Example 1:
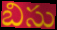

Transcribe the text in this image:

బిసు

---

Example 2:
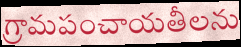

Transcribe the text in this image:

గ్రామపంచాయతీలను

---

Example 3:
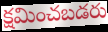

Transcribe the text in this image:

క్షమించబడరు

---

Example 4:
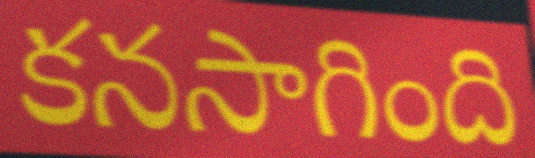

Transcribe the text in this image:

కనసాగింది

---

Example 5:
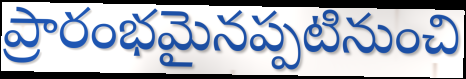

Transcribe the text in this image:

ప్రారంభమైనప్పటినుంచి